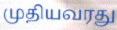
முதியவரது